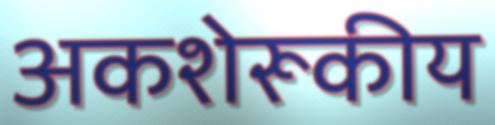
अकशेरूकीय